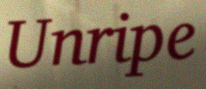
Unripe